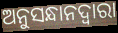
ଅନୁସନ୍ଧାନଦ୍ୱାରା